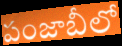
పంజాబీలో